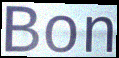
Bon